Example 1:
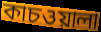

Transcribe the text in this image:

কাচওয়ালা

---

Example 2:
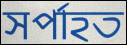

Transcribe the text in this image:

সর্পাহত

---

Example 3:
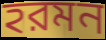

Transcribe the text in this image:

হরমন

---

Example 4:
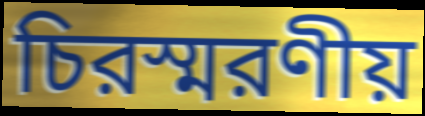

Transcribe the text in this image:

চিরস্মরণীয়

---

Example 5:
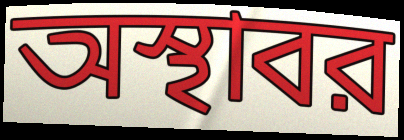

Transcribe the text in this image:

অস্থাবর